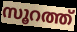
സൂറത്ത്